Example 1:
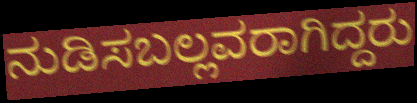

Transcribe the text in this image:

ನುಡಿಸಬಲ್ಲವರಾಗಿದ್ದರು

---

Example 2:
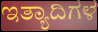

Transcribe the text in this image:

ಇತ್ಯಾದಿಗಳ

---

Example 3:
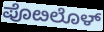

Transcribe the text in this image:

ಪೊೞಲೊಳ್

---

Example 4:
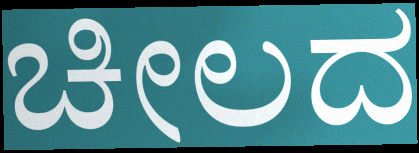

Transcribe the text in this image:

ಚೀಲದ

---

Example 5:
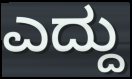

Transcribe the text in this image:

ಎದ್ದು